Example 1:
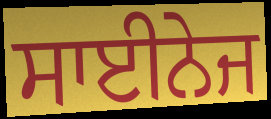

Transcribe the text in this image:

ਸਾਈਨੇਜ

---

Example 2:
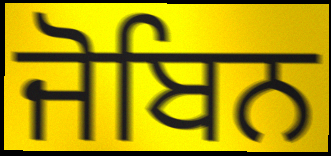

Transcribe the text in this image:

ਜੋਬਿਨ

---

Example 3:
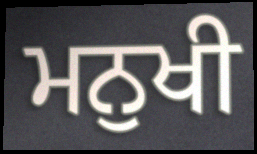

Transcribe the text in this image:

ਮਨੁਖੀ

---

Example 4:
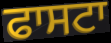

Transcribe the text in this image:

ਫਾਸਟਾ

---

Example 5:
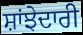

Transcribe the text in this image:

ਸ਼ਾਂਝੇਦਾਰੀ